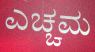
ಎಚ್ಚಮ